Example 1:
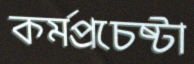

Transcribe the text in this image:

কর্মপ্রচেষ্টা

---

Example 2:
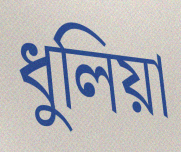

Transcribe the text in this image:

ধুলিয়া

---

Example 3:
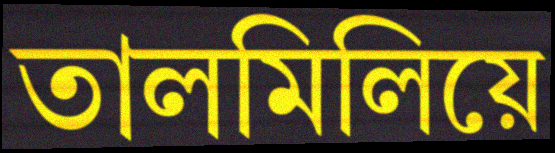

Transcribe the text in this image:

তালমিলিয়ে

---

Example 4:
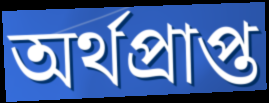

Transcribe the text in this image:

অর্থপ্রাপ্ত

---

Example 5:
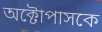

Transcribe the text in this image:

অক্টোপাসকে